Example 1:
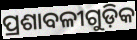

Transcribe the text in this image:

ପ୍ରଶାବଳୀଗୁଡ଼ିକ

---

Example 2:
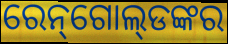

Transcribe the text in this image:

ରେନ୍‌ଗୋଲ୍‌ଡଙ୍କର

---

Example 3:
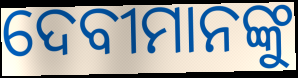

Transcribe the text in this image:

ଦେବୀମାନଙ୍କୁ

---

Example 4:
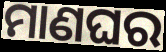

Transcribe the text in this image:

ମାଣଘର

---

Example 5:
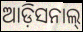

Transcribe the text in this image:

ଆଡ଼ିସନାଲ୍